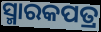
ସ୍ମାରକପତ୍ର